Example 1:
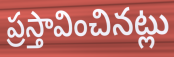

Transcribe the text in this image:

ప్రస్తావించినట్లు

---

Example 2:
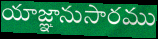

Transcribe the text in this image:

యాజ్ఞానుసారము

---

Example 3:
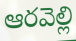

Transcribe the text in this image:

ఆరవెల్లి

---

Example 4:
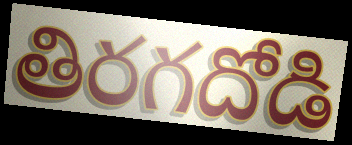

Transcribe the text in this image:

తిరగదోడి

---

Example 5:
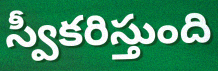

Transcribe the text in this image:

స్వీకరిస్తుంది